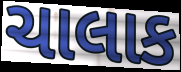
ચાલાક